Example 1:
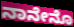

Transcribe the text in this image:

ನಾನೇನೊ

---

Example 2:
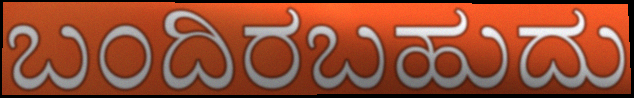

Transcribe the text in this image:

ಬಂದಿರಬಹುದು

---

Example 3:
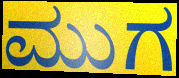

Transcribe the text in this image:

ಮುಗ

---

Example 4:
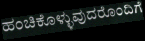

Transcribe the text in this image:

ಹಂಚಿಕೊಳ್ಳುವುದರೊಂದಿಗೆ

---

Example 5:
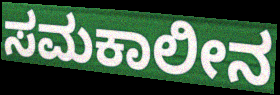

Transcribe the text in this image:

ಸಮಕಾಲೀನ